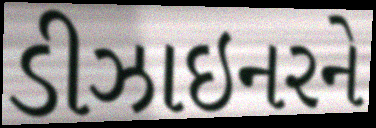
ડીઝાઇનરને